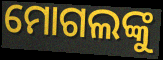
ମୋଗଲଙ୍କୁ